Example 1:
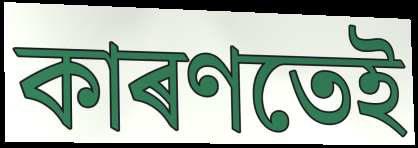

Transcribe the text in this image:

কাৰণতেই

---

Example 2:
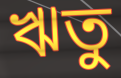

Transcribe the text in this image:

ঋতু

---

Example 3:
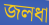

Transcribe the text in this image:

জলধা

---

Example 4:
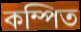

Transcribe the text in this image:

কম্পিত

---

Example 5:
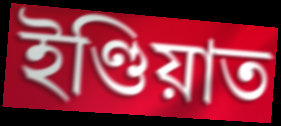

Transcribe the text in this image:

ইণ্ডিয়াত